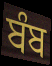
ਬੰਬ